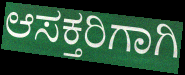
ಆಸಕ್ತರಿಗಾಗಿ